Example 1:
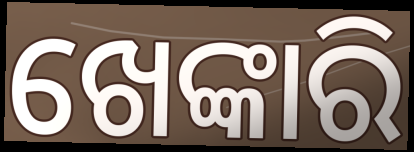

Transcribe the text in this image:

ଖେଙ୍କାରି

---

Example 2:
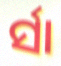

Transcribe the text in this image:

ର୍ସା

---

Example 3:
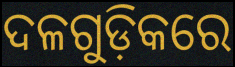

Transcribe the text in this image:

ଦଳଗୁଡ଼ିକରେ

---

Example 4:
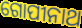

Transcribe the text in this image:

ଗୋପୀନାଥ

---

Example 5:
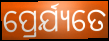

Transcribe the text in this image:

ପ୍ରେର୍ଯ୍ୟତେ